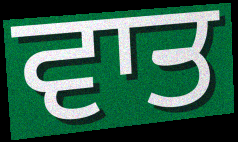
ਵਾਤ